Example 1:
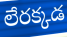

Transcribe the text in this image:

లేరక్కడ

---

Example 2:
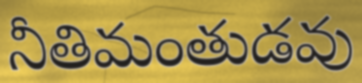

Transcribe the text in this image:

నీతిమంతుడవు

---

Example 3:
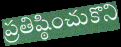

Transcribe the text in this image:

ప్రతిష్ఠించుకొని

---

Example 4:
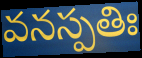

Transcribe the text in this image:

వనస్పతిః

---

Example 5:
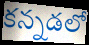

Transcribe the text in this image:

కన్నడలో